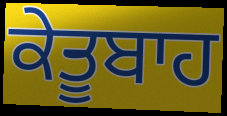
ਕੇਤੂਬਾਹ